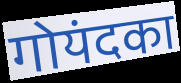
गोयंदका